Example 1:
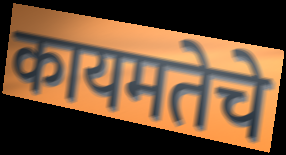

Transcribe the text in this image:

कायमतेचे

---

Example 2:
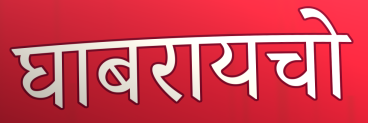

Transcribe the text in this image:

घाबरायचो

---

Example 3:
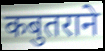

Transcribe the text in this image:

कबुतराने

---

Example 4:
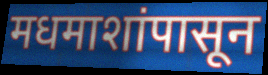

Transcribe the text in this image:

मधमाशांपासून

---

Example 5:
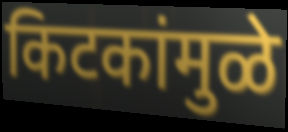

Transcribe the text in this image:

किटकांमुळे